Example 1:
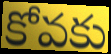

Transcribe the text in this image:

కోవకు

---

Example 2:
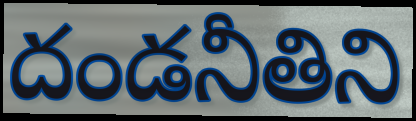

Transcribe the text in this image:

దండనీతిని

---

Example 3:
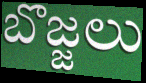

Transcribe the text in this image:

బొజ్జలు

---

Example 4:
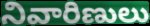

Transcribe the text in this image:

నివారిణులు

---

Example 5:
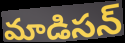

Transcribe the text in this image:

మాడిసన్